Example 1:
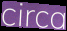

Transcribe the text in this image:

circa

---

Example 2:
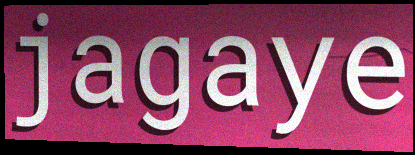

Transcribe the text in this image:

jagaye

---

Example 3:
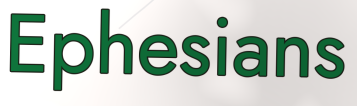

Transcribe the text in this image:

Ephesians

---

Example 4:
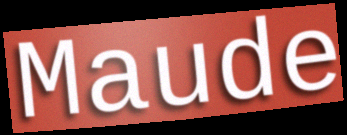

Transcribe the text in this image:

Maude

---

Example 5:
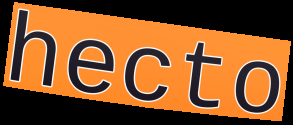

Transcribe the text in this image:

hecto